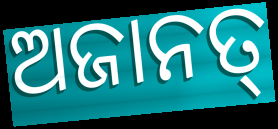
ଅଜାନତ୍